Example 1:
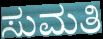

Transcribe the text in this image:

ಸುಮತಿ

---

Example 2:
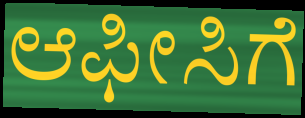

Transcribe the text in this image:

ಆಫೀಸಿಗೆ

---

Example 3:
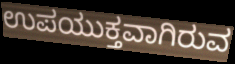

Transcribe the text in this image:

ಉಪಯುಕ್ತವಾಗಿರುವ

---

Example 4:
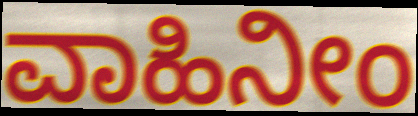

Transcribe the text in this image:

ವಾಹಿನೀಂ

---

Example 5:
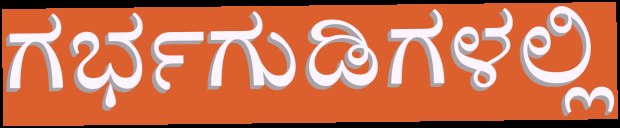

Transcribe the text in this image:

ಗರ್ಭಗುಡಿಗಳಲ್ಲಿ